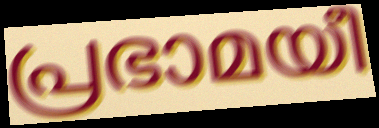
പ്രഭാമയീ